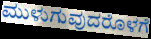
ಮುಳುಗುವುದರೊಳಗೆ